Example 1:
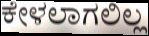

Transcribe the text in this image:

ಕೇಳಲಾಗಲಿಲ್ಲ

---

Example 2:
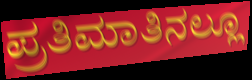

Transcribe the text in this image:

ಪ್ರತಿಮಾತಿನಲ್ಲೂ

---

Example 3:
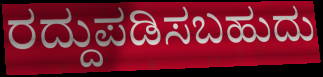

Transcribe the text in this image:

ರದ್ದುಪಡಿಸಬಹುದು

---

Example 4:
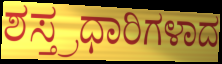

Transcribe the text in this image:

ಶಸ್ತ್ರಧಾರಿಗಳಾದ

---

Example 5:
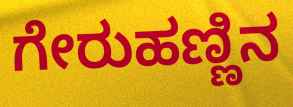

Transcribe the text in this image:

ಗೇರುಹಣ್ಣಿನ